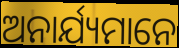
ଅନାର୍ଯ୍ୟମାନେ